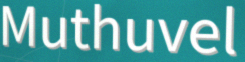
Muthuvel